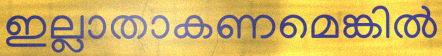
ഇല്ലാതാകണമെങ്കിൽ